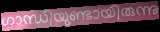
ഗാന്ധിയുണ്ടായിരുന്നു